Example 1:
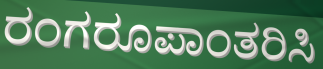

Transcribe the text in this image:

ರಂಗರೂಪಾಂತರಿಸಿ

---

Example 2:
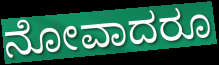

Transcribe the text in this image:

ನೋವಾದರೂ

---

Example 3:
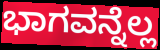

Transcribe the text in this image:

ಭಾಗವನ್ನೆಲ್ಲ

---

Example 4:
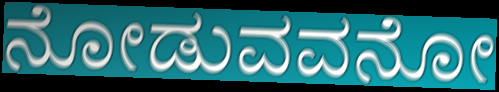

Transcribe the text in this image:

ನೋಡುವವನೋ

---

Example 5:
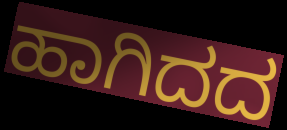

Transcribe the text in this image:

ಹಾಗಿದದ